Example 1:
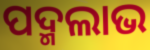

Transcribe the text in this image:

ପଦ୍ମଲାଭ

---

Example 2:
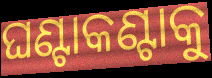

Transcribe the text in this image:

ଘଣ୍ଟାକଣ୍ଟାକୁ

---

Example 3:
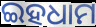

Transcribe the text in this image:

ଇହଧାମ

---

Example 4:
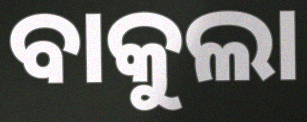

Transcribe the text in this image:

ବାକୁଲା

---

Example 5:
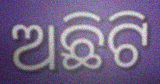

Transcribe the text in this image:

ଅଛିଟି